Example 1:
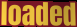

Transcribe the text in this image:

loaded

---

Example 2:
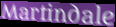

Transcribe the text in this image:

Martindale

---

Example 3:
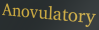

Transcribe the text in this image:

Anovulatory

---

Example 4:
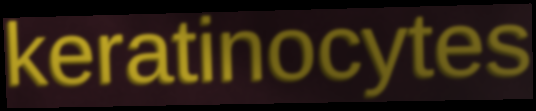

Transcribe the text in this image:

keratinocytes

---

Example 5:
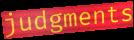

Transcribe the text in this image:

judgments